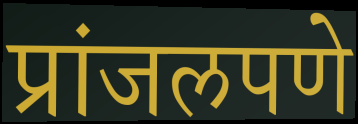
प्रांजलपणे